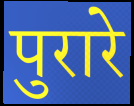
पुरारे